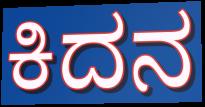
ಕಿದನ